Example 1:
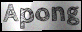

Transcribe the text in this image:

Apong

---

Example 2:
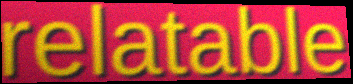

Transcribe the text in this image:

relatable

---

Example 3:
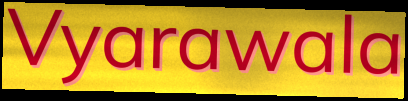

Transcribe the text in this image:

Vyarawala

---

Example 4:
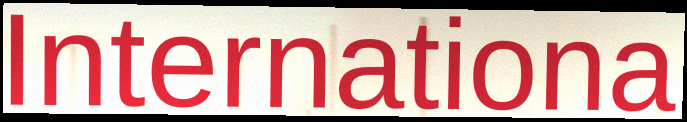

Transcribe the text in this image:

Internationa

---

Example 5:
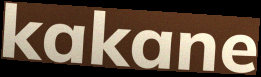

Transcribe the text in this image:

kakane